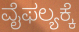
ವೈಫಲ್ಯಕ್ಕೆ